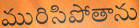
మురిసిపోతాను